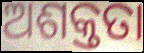
ଅଶକ୍ତତା